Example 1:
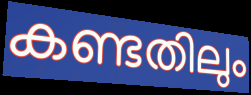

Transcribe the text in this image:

കണ്ടതിലും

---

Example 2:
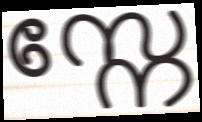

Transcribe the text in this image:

സ്നേ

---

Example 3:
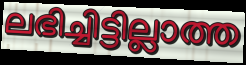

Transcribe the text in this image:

ലഭിച്ചിട്ടില്ലാത്ത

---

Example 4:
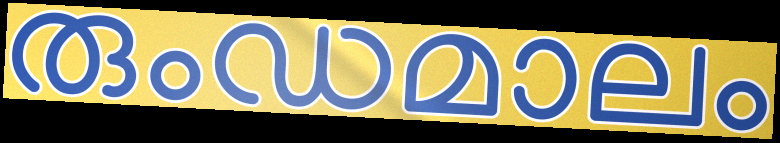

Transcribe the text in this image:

രുംഡമാലം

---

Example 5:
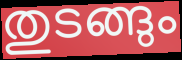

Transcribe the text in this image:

തുടങ്ങും